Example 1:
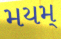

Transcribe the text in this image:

મયમ્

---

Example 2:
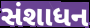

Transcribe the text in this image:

સંશાધન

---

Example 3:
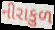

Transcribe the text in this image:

નીરાકુળ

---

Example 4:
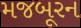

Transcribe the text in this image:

મજબૂરન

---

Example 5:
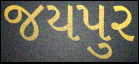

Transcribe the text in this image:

જયપુર